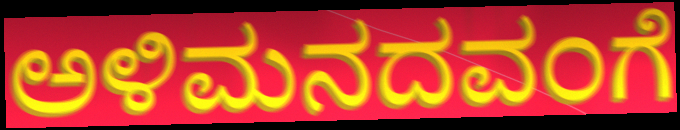
ಅಳಿಮನದವಂಗೆ